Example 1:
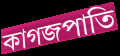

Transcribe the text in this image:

কাগজপাতি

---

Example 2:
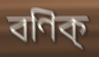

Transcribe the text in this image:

বণিক্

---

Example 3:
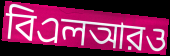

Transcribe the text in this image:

বিএলআরও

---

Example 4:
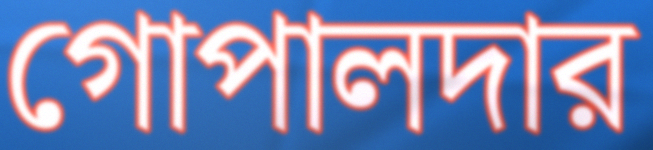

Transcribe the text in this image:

গোপালদার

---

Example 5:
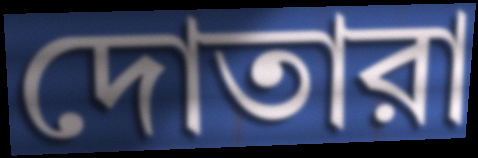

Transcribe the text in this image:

দোতারা